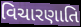
વિચારણાતિ